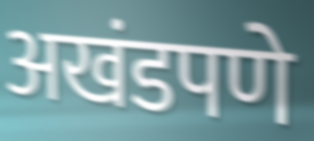
अखंडपणे